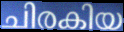
ചിരകിയ